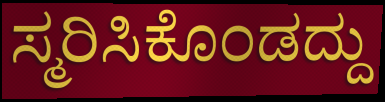
ಸ್ಮರಿಸಿಕೊಂಡದ್ದು